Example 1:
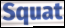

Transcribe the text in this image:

Squat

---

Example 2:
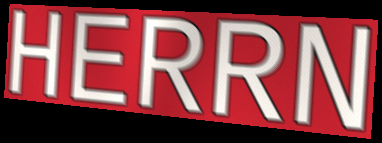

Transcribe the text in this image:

HERRN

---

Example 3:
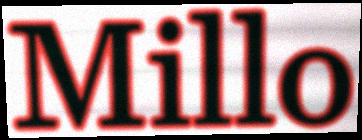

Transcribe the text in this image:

Millo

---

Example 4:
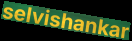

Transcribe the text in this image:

selvishankar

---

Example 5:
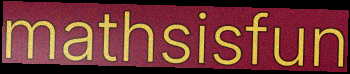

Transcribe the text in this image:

mathsisfun